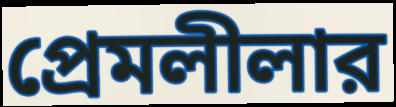
প্রেমলীলার